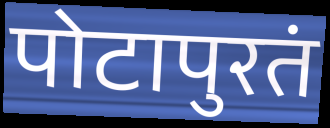
पोटापुरतं